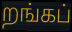
றங்கப்